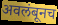
अवलंबूनच